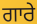
ਗਾਰੇ